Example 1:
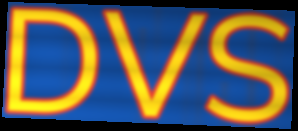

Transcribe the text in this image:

DVS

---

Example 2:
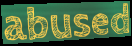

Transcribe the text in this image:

abused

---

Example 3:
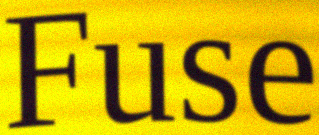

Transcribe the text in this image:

Fuse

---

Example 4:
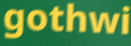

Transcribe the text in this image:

gothwi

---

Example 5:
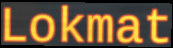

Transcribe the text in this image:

Lokmat